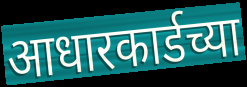
आधारकार्डच्या